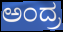
ಅಂದ್ರ